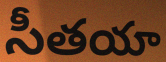
సీతయా